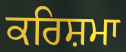
ਕਰਿਸ਼ਮਾ